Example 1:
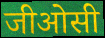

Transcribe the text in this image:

जीओसी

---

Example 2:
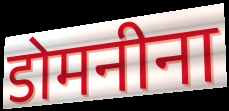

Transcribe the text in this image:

डोमनीना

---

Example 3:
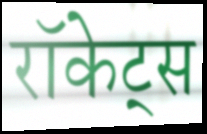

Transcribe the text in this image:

रॉकेट्स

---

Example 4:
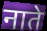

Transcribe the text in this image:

नाते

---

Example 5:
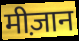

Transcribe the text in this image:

मीज़ान